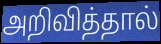
அறிவித்தால்